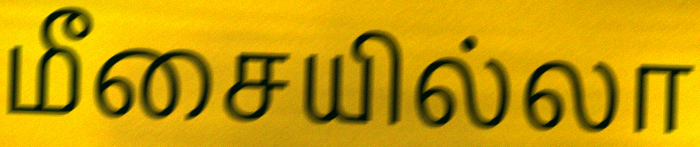
மீசையில்லா